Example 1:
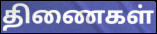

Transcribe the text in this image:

திணைகள்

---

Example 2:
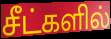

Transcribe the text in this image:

சீட்களில்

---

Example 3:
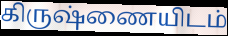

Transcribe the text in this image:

கிருஷ்ணையிடம்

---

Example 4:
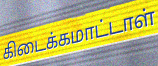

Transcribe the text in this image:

கிடைக்கமாட்டாள்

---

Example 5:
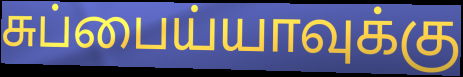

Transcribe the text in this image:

சுப்பைய்யாவுக்கு